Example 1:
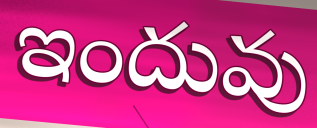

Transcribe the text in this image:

ఇందువు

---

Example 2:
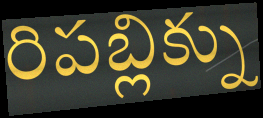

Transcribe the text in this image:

రిపబ్లిక్ను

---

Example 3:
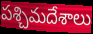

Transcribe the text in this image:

పశ్చిమదేశాలు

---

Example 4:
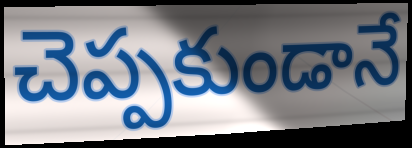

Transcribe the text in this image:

చెప్పకుండానే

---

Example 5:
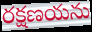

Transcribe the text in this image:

రక్షణయను